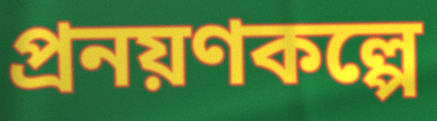
প্রনয়ণকল্পে